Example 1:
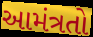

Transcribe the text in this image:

આમંત્રતો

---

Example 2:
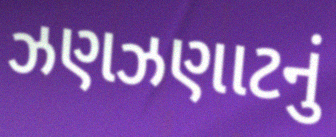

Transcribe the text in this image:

ઝણઝણાટનું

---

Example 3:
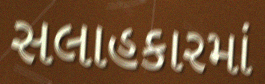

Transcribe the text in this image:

સલાહકારમાં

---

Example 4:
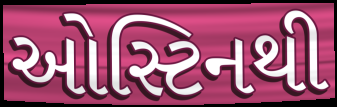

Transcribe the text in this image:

ઓસ્ટિનથી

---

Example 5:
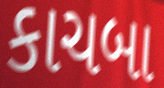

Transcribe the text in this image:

કાચબા